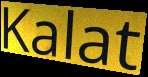
Kalat